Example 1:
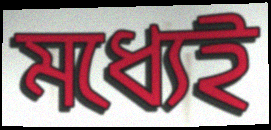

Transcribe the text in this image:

মধ্যেই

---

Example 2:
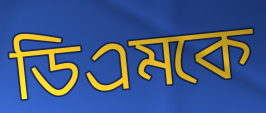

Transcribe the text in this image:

ডিএমকে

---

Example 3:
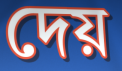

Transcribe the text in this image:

দেয়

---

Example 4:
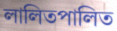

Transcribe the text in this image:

লালিতপালিত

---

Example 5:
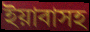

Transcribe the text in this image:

ইয়াবাসহ